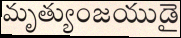
మృత్యుంజయుడై